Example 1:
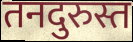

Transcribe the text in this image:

तनदुरुस्त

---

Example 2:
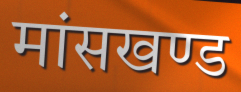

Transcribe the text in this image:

मांसखण्ड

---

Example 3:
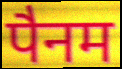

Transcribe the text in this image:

पैनम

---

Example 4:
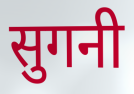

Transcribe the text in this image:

सुगनी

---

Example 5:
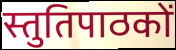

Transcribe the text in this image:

स्तुतिपाठकों